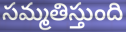
సమ్మతిస్తుంది